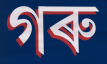
গৰু